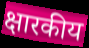
क्षारकीय